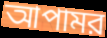
আপামর